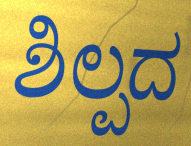
ಶಿಲ್ಪದ